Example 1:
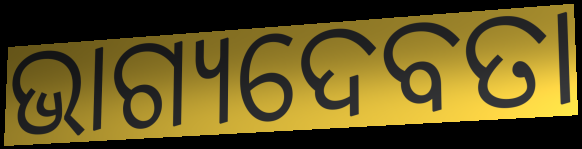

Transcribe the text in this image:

ଭାଗ୍ୟଦେବତା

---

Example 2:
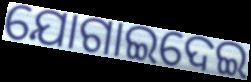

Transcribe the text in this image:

ଯୋଗାଇଦେଇ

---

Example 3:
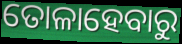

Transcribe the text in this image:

ତୋଳାହେବାରୁ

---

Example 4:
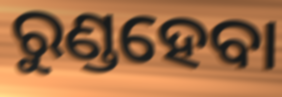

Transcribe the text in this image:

ରୁଣ୍ଡହେବା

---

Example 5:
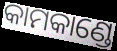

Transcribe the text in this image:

କାମକାଣ୍ଡେ